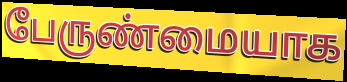
பேருண்மையாக